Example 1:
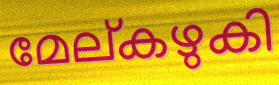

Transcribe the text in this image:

മേല്കഴുകി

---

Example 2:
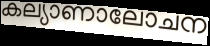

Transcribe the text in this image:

കല്യാണാലോചന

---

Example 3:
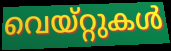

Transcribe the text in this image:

വെയ്റ്റുകൾ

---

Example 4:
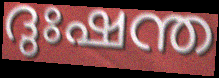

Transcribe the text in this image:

ദുഃഷന്ത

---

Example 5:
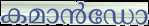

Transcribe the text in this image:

കമാൻഡോ